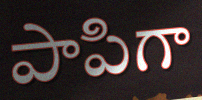
పాపిగా